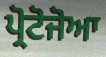
ਪ੍ਰੋਟੋਜੋਆ